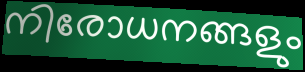
നിരോധനങ്ങളും